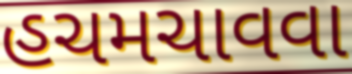
હચમચાવવા